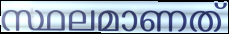
സ്ഥലമാണത്